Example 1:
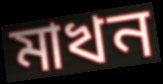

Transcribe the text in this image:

মাখন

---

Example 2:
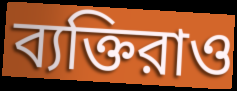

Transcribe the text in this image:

ব্যক্তিরাও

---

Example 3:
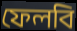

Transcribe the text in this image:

ফেলবি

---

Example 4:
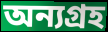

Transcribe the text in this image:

অন্যগ্রহ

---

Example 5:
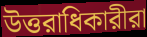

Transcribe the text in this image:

উত্তরাধিকারীরা